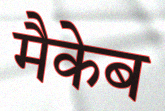
मैकेब